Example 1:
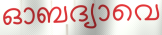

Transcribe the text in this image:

ഓബദ്യാവെ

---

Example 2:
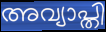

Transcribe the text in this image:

അവ്യാപ്തി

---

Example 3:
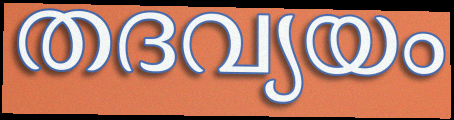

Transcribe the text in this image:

തദവ്യയം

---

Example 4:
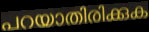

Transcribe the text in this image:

പറയാതിരിക്കുക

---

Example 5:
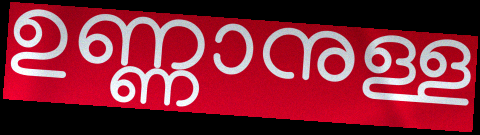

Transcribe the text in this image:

ഉണ്ണാനുള്ള